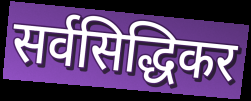
सर्वसिद्धिकर